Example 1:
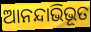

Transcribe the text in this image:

ଆନନ୍ଦାଭିଭୂତ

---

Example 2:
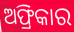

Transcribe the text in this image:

ଅଫ୍ରିକାର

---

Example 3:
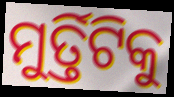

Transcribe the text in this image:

ମୁର୍ତ୍ତିଟିକୁ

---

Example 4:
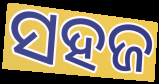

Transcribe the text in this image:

ସହଜ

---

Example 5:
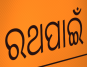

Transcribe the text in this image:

ରଥପାଇଁ